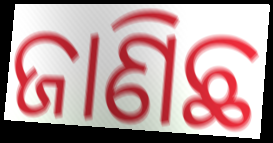
ଜାଣିଛ